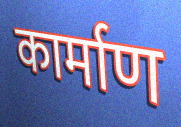
कार्माण